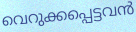
വെറുക്കപ്പെട്ടവൻ